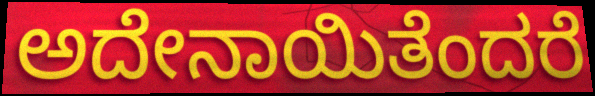
ಅದೇನಾಯಿತೆಂದರೆ